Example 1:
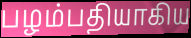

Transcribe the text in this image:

பழம்பதியாகிய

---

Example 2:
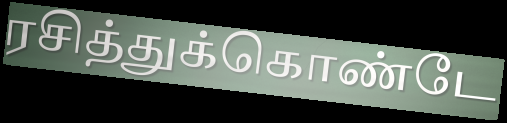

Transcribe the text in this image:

ரசித்துக்கொண்டே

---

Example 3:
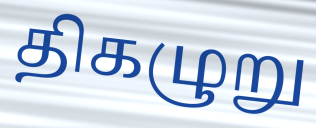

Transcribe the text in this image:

திகழுறு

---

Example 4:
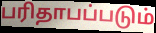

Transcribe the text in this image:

பரிதாபப்படும்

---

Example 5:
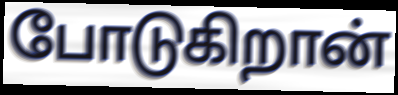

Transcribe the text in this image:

போடுகிறான்